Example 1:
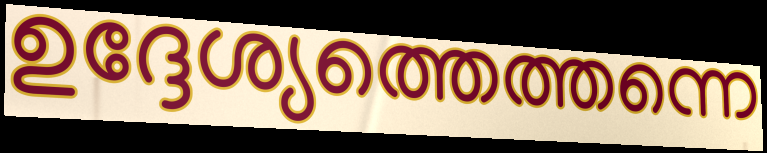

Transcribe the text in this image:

ഉദ്ദേശ്യത്തെത്തന്നെ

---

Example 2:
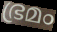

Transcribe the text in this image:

ഭ്രമം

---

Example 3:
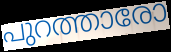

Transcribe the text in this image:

പുറത്താരോ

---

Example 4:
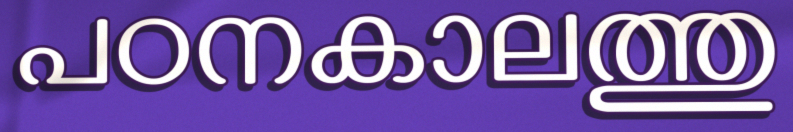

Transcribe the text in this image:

പഠനകാലത്തു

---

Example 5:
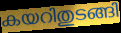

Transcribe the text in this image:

കയറിതുടങ്ങി